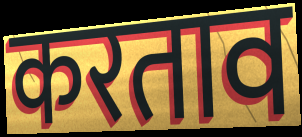
करताव